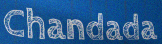
Chandada